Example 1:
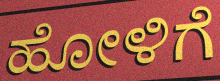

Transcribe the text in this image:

ಹೋಳಿಗೆ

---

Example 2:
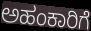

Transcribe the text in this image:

ಅಹಂಕಾರಿಗೆ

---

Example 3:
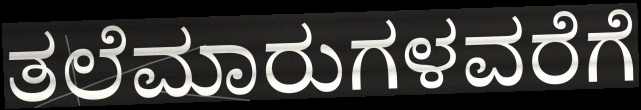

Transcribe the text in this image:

ತಲೆಮಾರುಗಳವರೆಗೆ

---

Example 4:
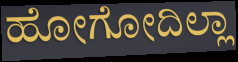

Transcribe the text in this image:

ಹೋಗೋದಿಲ್ಲಾ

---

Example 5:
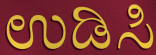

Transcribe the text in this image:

ಉಡಿಸಿ